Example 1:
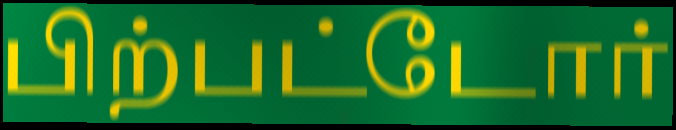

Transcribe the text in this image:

பிற்பட்டோர்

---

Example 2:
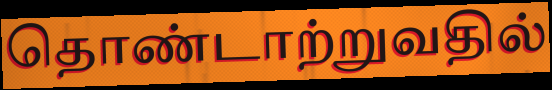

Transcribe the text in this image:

தொண்டாற்றுவதில்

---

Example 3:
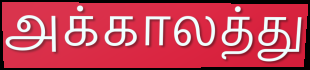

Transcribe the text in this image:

அக்காலத்து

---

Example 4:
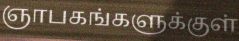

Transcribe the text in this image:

ஞாபகங்களுக்குள்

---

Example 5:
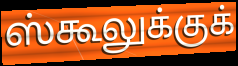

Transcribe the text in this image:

ஸ்கூலுக்குக்